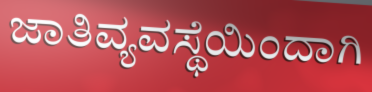
ಜಾತಿವ್ಯವಸ್ಥೆಯಿಂದಾಗಿ